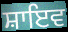
ਸ਼ਾਇਵ